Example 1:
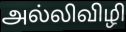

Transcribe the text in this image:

அல்லிவிழி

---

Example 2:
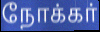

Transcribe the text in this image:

நோக்கர்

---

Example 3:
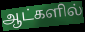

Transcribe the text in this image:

ஆட்களில்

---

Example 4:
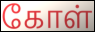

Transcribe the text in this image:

கோள்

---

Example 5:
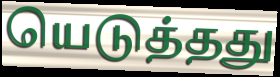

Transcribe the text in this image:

யெடுத்தது